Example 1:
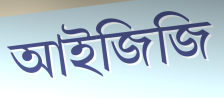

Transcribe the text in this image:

আইজিজি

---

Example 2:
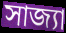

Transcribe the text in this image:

সাজ্যা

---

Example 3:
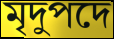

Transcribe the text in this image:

মৃদুপদে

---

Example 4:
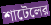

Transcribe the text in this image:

শাটেলের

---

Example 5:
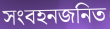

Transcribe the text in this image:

সংবহনজনিত